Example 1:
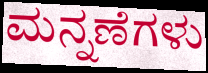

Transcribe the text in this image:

ಮನ್ನಣೆಗಳು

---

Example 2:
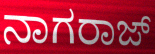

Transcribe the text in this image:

ನಾಗರಾಜ್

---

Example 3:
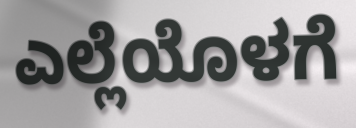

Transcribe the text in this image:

ಎಲ್ಲೆಯೊಳಗೆ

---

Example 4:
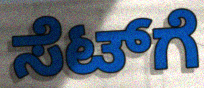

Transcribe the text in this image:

ಸೆಟ್‌ಗೆ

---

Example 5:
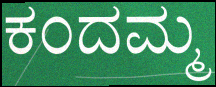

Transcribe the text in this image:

ಕಂದಮ್ಮ